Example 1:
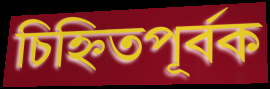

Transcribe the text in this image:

চিহ্নিতপূর্বক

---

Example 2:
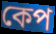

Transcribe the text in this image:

কেপ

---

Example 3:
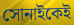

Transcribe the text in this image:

সোনাইকেই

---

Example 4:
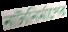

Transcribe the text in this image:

নাট্যনির্মাণের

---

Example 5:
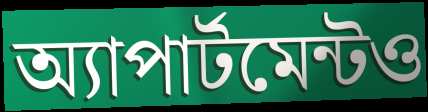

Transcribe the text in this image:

অ্যাপার্টমেন্টও